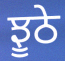
ਝੂਠੇ